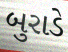
બુરાડે